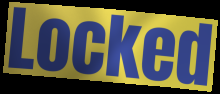
Locked